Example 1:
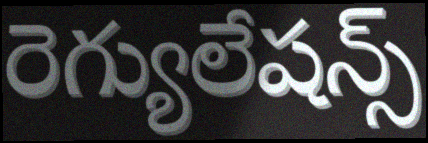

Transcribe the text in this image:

రెగ్యులేషన్స్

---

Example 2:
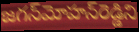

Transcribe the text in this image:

జగన్‌మోహన్‌రెడ్డిని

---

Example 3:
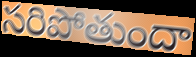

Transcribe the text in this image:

సరిపోతుందా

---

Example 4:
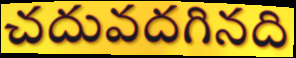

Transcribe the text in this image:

చదువదగినది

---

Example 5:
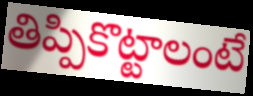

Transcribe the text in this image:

తిప్పికొట్టాలంటే